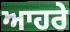
ਆਹਰੇ